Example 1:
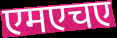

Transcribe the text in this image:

एमएचए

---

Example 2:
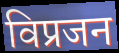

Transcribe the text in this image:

विप्रजन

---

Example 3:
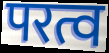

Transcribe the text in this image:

परत्व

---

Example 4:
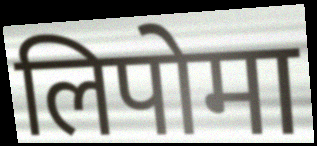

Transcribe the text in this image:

लिपोमा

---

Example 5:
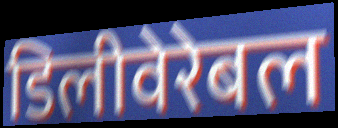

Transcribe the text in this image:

डिलीवेरेबल